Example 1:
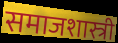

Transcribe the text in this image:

समाजशास्त्री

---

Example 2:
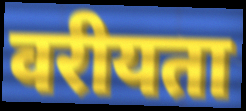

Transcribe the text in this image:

वरीयता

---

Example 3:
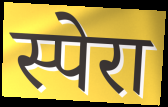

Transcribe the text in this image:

स्पेरा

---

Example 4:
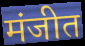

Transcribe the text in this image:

मंजीत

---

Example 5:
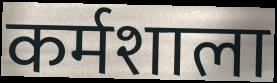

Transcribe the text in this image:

कर्मशाला